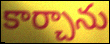
కార్చాను